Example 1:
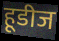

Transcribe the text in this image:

हूडीज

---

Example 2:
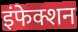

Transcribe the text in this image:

इंफेक्शन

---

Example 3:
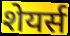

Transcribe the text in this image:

शेयर्स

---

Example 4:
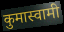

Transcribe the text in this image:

कुमास्वामी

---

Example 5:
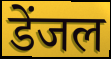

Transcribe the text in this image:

डेंजल